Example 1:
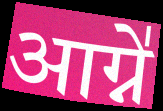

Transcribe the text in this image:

आग्ने॑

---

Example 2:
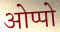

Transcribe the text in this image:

ओप्पो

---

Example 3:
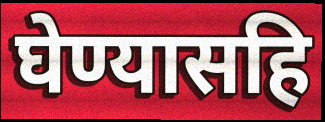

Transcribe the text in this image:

घेण्यासहि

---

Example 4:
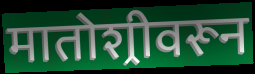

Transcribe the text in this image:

मातोश्रीवरून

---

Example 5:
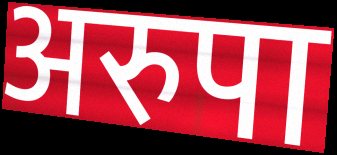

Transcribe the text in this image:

अरुपा